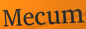
Mecum